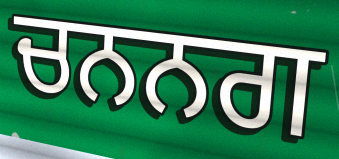
ਚਨਨਗ